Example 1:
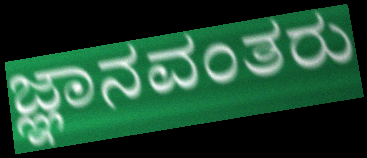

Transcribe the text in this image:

ಜ್ಞಾನವಂತರು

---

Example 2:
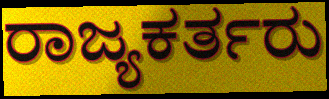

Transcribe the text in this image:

ರಾಜ್ಯಕರ್ತರು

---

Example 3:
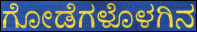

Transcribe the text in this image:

ಗೋಡೆಗಳೊಳಗಿನ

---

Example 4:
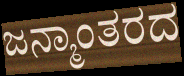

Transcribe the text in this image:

ಜನ್ಮಾಂತರದ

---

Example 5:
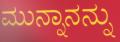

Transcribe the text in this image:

ಮುನ್ನಾನನ್ನು